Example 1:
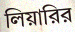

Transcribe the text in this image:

লিয়ারির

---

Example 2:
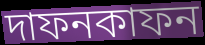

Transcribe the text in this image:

দাফনকাফন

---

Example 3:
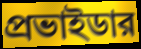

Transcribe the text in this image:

প্রভাইডার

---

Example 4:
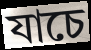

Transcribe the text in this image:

যাচে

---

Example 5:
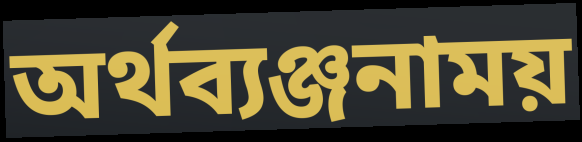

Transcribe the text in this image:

অর্থব্যঞ্জনাময়